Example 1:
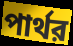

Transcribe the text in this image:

পার্থর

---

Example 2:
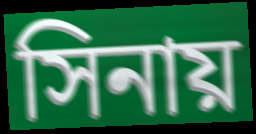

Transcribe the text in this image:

সিনায়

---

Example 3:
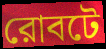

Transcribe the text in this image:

রোবটে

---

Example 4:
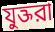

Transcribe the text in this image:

যুক্তরা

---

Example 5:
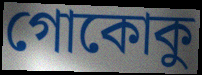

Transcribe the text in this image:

গোকোকু